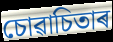
চোৱাচিতাৰ